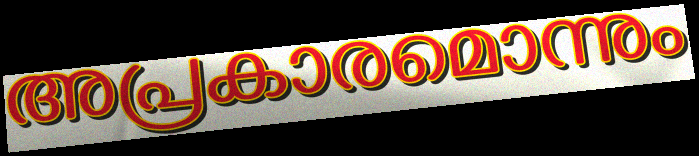
അപ്രകാരമൊന്നും